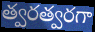
త్వరత్వరగా